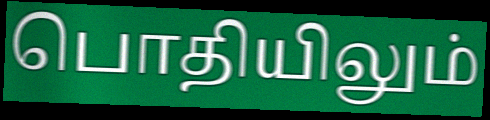
பொதியிலும்